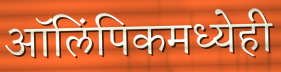
ऑलिंपिकमध्येही